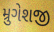
મ્રુગેશજી